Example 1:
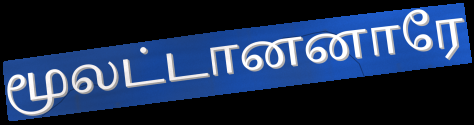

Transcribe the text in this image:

மூலட்டானனாரே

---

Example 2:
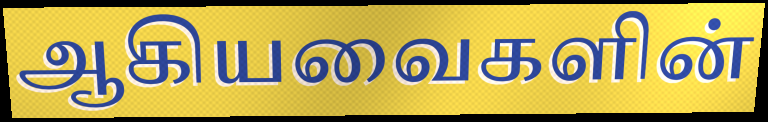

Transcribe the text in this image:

ஆகியவைகளின்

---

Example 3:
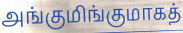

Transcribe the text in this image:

அங்குமிங்குமாகத்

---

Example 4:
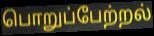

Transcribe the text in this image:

பொறுப்பேற்றல்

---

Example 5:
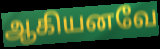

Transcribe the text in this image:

ஆகியனவே